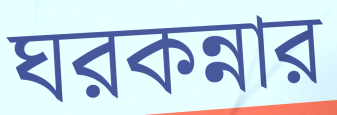
ঘরকন্নার